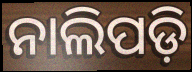
ନାଲିପଡ଼ି